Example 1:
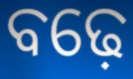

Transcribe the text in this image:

ବଢ଼େ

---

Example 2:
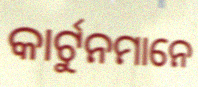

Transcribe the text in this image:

କାର୍ଟୁନମାନେ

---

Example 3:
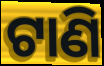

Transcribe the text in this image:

ଟାଣି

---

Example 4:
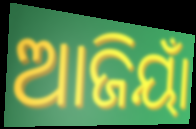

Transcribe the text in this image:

ଆଜିୟାଁ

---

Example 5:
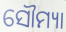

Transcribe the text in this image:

ସୌମ୍ୟା